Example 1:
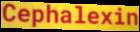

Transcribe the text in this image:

Cephalexin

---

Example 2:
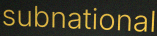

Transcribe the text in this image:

subnational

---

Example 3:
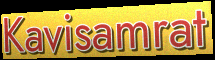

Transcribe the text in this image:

Kavisamrat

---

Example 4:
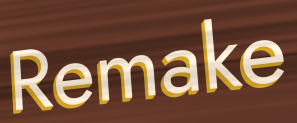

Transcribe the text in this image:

Remake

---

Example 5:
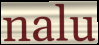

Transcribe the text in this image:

nalu